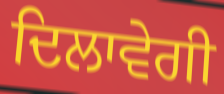
ਦਿਲਾਵੇਗੀ